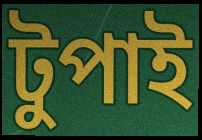
টুপাই